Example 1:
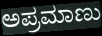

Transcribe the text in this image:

ಅಪ್ರಮಾಣು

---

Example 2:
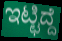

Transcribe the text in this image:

ಇಟ್ಟಿದ್ದೆ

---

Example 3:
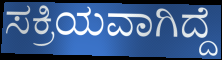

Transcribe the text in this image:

ಸಕ್ರಿಯವಾಗಿದ್ದೆ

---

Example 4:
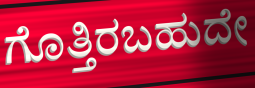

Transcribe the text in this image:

ಗೊತ್ತಿರಬಹುದೇ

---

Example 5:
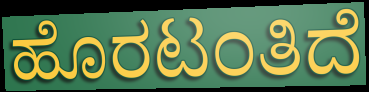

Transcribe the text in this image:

ಹೊರಟಂತಿದೆ